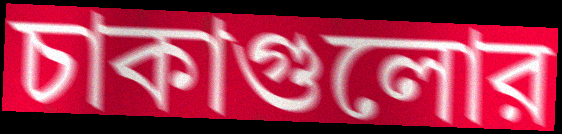
চাকাগুলোর